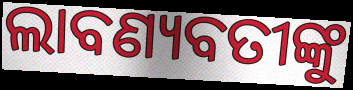
ଲାବଣ୍ୟବତୀଙ୍କୁ